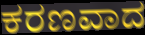
ಕರಣವಾದ